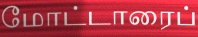
மோட்டாரைப்